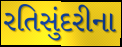
રતિસુંદરીના